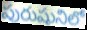
పురుషునిలో